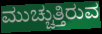
ಮುಚ್ಚುತ್ತಿರುವ